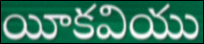
యీకవియు